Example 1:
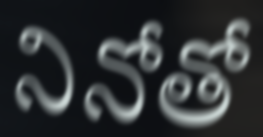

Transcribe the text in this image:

నినోతో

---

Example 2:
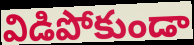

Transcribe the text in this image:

విడిపోకుండా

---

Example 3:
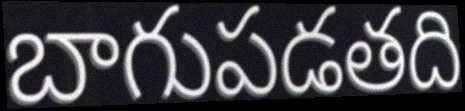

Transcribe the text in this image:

బాగుపడతది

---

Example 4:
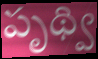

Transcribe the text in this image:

పృథ్వి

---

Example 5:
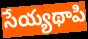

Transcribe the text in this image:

సేయ్యథాపి